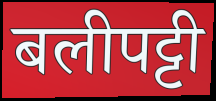
बलीपट्टी